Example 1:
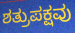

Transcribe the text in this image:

ಶತ್ರುಪಕ್ಷವು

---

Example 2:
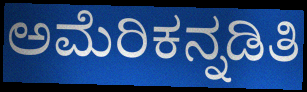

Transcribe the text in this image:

ಅಮೆರಿಕನ್ನಡಿತಿ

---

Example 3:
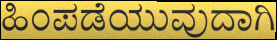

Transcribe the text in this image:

ಹಿಂಪಡೆಯುವುದಾಗಿ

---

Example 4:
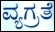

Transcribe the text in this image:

ವ್ಯಗ್ರತೆ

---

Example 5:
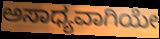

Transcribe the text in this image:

ಅಸಾಧ್ಯವಾಗಿಯೇ